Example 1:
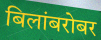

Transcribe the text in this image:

बिलांबरोबर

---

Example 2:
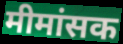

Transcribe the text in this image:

मीमांसक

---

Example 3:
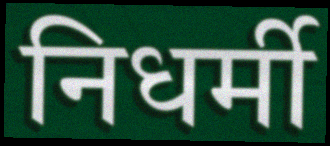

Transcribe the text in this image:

निधर्मी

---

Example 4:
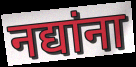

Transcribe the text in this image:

नद्यांना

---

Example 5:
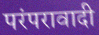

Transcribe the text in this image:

परंपरावादी